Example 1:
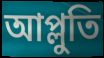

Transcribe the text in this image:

আপ্লুতি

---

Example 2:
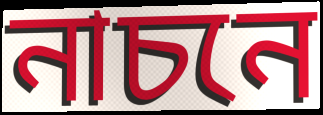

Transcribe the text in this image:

নাচনে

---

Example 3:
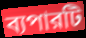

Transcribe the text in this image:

ব্যপারটি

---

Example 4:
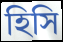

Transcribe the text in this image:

হিসি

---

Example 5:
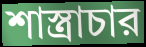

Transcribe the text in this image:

শাস্ত্রাচার